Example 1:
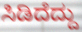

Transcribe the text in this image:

ಸಿಡಿದೆದ್ದು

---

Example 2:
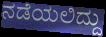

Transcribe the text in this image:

ನಡೆಯಲಿದ್ದು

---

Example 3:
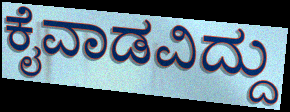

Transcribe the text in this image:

ಕೈವಾಡವಿದ್ದು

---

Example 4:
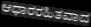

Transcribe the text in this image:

ಆಧಾರರಹಿತವಾದ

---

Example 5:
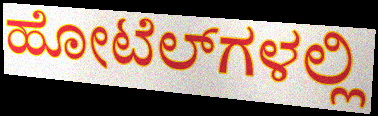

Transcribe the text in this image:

ಹೋಟೆಲ್‍ಗಳಲ್ಲಿ